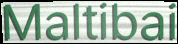
Maltibai